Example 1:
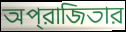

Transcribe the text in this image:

অপ্‌রাজিতার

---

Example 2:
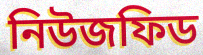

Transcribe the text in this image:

নিউজফিড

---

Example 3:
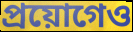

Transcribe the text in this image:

প্রয়োগেও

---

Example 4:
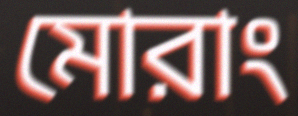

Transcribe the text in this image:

মোরাং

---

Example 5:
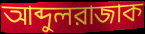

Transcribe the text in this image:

আব্দুলরাজাক